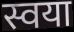
स्वया